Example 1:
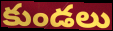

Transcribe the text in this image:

కుండలు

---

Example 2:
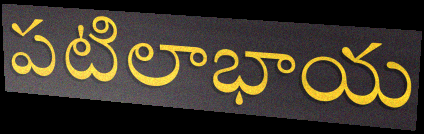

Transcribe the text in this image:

పటిలాభాయ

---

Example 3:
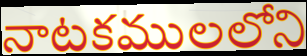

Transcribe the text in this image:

నాటకములలోని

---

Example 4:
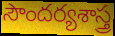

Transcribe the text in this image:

సౌందర్యశాస్త్ర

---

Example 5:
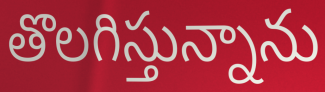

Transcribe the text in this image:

తొలగిస్తున్నాను